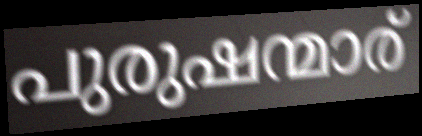
പുരുഷന്മാര്